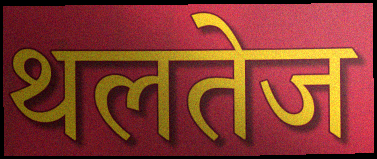
थलतेज